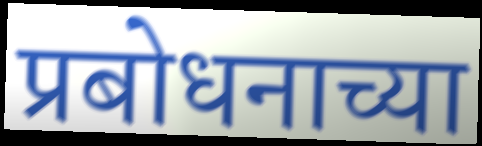
प्रबोधनाच्या